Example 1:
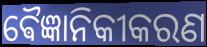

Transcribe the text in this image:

ଵୈଜ୍ଞାନିକୀକରଣ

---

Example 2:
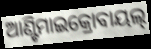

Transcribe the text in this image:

ଆଣ୍ଟିମାଇକ୍ରୋବାୟଲ୍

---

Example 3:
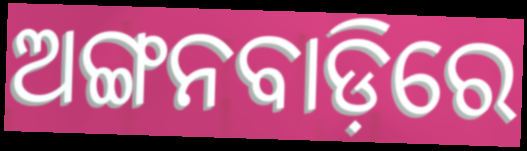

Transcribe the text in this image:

ଅଙ୍ଗନବାଡ଼ିରେ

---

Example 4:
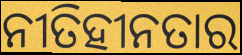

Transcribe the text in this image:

ନୀତିହୀନତାର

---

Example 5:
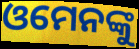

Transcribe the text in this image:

ଓମେନଙ୍କୁ